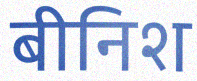
बीनिश